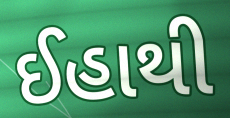
ઈહાથી